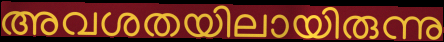
അവശതയിലായിരുന്നു